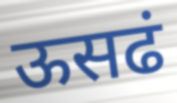
ऊसढं